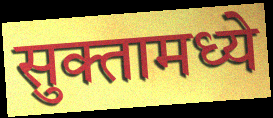
सुक्तामध्ये